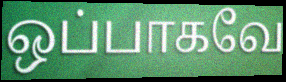
ஒப்பாகவே